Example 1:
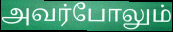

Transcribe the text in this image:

அவர்போலும்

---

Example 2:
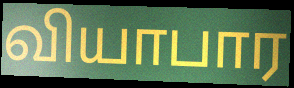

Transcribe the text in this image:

வியாபார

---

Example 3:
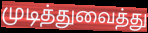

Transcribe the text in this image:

முடித்துவைத்து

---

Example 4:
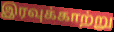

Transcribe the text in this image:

இரவுக்காற்று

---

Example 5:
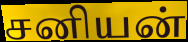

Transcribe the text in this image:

சனியன்